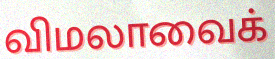
விமலாவைக்